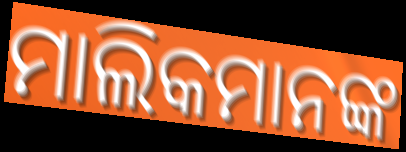
ମାଲିକମାନଙ୍କ